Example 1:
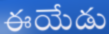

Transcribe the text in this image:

ఈయేడు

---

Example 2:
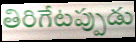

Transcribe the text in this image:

తిరిగేటప్పుడు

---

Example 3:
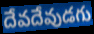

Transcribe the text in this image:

దేవదేవుడగు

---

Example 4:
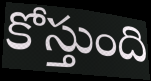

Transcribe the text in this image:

కోస్తుంది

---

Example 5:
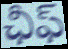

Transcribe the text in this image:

ఛీఫ్